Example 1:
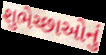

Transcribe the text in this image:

શુભેચ્છાઓનું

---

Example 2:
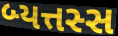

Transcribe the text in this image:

બ્યત્તસ્સ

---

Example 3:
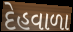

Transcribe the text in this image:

દેહવાળા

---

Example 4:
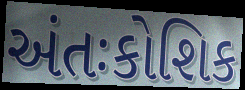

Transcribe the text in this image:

અંતઃકોશિક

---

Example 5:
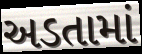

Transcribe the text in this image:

અડતામાં